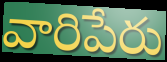
వారిపేరు